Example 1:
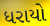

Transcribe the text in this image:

ધરાયો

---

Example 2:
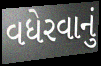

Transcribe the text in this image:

વધેરવાનું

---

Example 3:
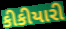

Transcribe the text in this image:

કીકીયારી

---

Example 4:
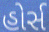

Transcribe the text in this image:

હોર્સ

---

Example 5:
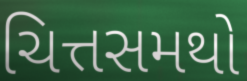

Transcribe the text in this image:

ચિત્તસમથો